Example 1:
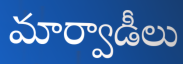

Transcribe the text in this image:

మార్వాడీలు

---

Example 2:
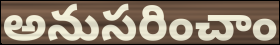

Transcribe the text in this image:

అనుసరించాం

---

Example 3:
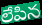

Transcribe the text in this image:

లేపిన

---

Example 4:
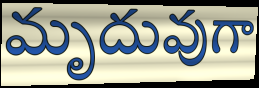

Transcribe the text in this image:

మృదువుగా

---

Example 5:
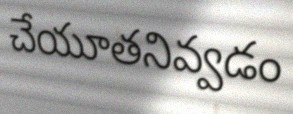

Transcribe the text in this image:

చేయూతనివ్వడం